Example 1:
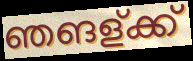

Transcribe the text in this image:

ഞങള്ക്ക്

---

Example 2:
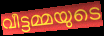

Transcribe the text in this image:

വീട്ടമ്മയുടെ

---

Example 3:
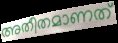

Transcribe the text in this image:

അതീതമാണത്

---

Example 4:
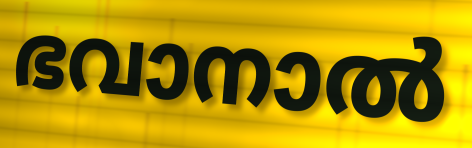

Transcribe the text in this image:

ഭവാനാൽ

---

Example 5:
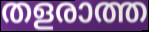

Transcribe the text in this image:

തളരാത്ത